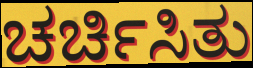
ಚರ್ಚಿಸಿತು